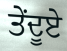
ਤੇਂਦੂਏ